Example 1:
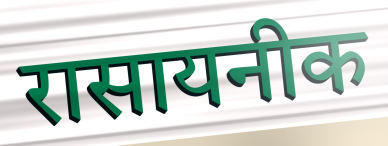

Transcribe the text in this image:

रासायनीक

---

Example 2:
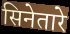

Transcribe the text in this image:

सिनेतारे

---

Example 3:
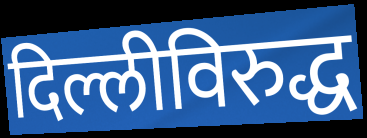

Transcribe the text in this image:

दिल्लीविरुद्ध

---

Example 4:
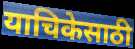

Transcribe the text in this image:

याचिकेसाठी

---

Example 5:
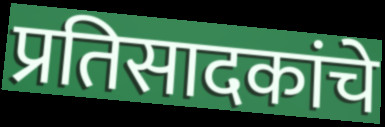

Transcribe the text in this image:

प्रतिसादकांचे